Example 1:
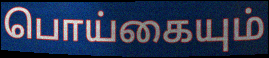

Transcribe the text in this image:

பொய்கையும்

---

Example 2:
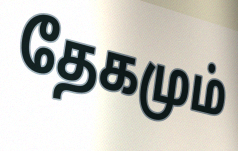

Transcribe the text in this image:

தேகமும்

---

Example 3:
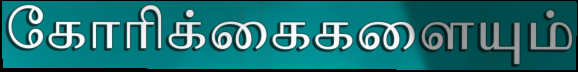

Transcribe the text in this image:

கோரிக்கைகளையும்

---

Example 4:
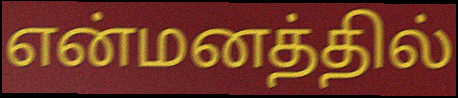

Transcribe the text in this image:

என்மனத்தில்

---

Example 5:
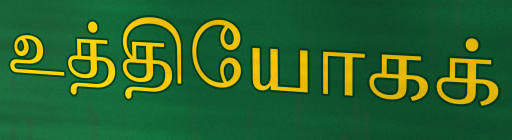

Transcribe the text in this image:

உத்தியோகக்